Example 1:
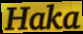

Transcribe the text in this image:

Haka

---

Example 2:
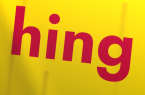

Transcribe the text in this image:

hing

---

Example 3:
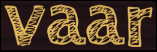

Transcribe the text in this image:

vaar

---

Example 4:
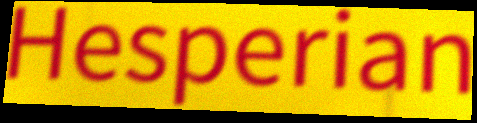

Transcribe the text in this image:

Hesperian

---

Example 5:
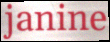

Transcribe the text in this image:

janine